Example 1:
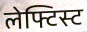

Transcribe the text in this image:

लेफ्टिस्ट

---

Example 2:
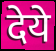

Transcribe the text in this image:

देये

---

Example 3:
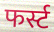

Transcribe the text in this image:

फर्स्ट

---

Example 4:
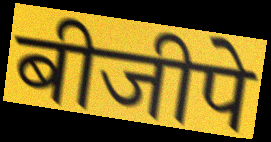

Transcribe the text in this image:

बीजीपे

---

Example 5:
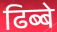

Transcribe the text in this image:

ढिब्बे